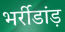
भर्रीडांड़